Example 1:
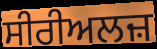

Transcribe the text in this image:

ਸੀਰੀਅਲਜ਼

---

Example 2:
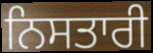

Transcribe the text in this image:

ਨਿਸਤਾਰੀ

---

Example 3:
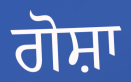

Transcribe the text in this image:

ਗੋਸ਼ਾ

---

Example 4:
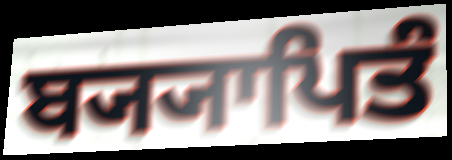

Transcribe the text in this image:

ਬ੍ਯ੍ਯਾਪਿਤੰ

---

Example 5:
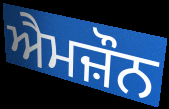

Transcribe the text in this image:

ਐਮਜ਼ੌਨ